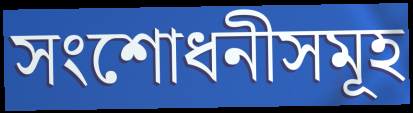
সংশোধনীসমূহ